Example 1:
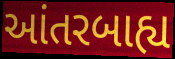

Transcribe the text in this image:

આંતરબાહ્ય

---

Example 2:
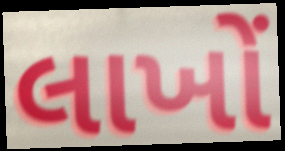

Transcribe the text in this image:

લાખોં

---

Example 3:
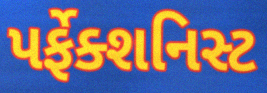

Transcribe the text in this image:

પર્ફેક્શનિસ્ટ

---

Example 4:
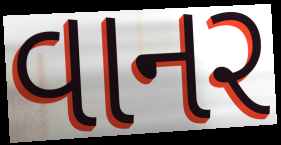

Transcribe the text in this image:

વાનર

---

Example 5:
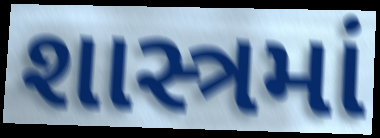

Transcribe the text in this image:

શાસ્ત્રમાં